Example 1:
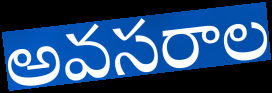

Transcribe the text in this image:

అవసరాల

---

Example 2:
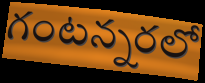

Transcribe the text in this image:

గంటన్నరలో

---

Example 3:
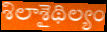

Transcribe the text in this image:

శిలాశైథిల్యం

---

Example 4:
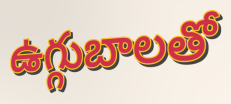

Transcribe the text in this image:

ఉగ్గుబాలతో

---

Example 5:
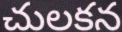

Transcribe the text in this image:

చులకన